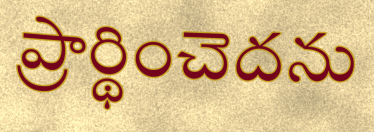
ప్రార్థించెదను